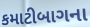
કમાટીબાગના